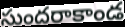
సుందరాకాండ